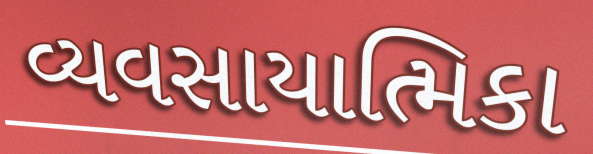
વ્યવસાયાત્મિકા